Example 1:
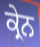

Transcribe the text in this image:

ਕ੍ਰੇਨ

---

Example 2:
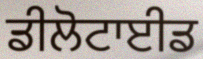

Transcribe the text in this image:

ਡੀਲੋਟਾਈਡ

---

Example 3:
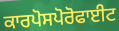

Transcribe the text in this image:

ਕਾਰਪੋਸਪੋਰੋਫਾਈਟ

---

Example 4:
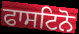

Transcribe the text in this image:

ਫਾਸਟਿਨੋ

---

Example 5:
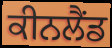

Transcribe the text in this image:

ਕੀਨਲੈਂਡ